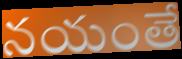
నయంతే